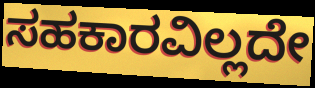
ಸಹಕಾರವಿಲ್ಲದೇ